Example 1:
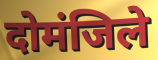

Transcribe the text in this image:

दोमंजिले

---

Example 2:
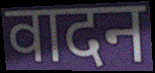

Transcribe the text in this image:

वादन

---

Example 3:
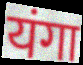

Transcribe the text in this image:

यंगा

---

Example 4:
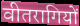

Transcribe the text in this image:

वीतरागियों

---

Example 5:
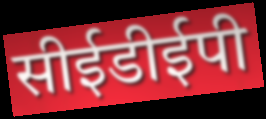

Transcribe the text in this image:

सीईडीईपी